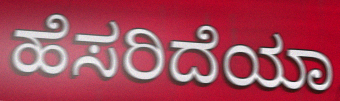
ಹೆಸರಿದೆಯಾ